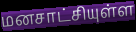
மனசாட்சியுள்ள